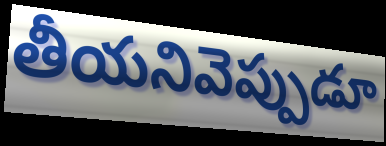
తీయనివెప్పుడూ